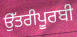
ਉੱਤਰੀਪੂਰਬੀ